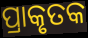
ପ୍ରାକୃତକ